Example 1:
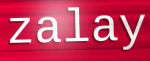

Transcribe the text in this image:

zalay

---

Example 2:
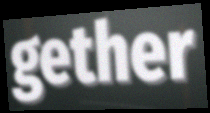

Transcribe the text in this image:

gether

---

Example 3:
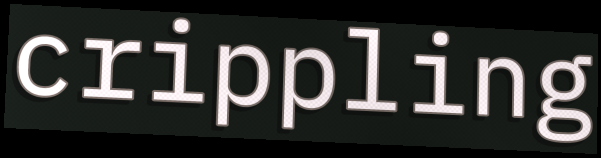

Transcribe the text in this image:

crippling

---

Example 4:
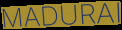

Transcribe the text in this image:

MADURAI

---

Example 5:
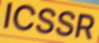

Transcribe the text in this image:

ICSSR